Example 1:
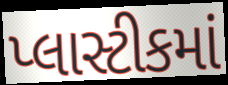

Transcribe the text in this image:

પ્લાસ્ટીકમાં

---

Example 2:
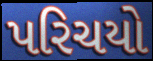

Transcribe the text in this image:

પરિચયો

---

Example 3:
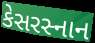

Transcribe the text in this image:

કેસરસ્નાન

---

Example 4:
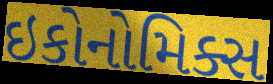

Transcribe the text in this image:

ઇકોનોમિક્સ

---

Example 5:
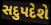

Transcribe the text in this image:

સદુપદેશે